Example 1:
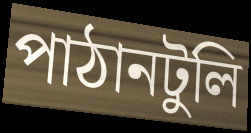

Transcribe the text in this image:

পাঠানটুলি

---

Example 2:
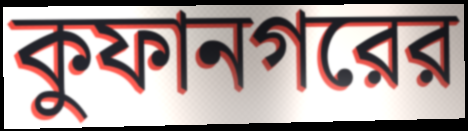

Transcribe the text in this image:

কুফানগরের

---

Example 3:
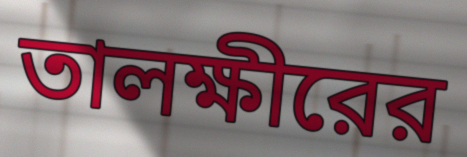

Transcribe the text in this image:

তালক্ষীরের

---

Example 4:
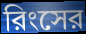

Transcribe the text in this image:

রিংসের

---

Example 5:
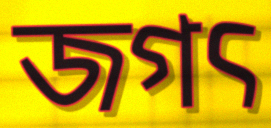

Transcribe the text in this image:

জগৎ